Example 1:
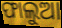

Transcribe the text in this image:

ଫାଲୁଆ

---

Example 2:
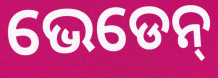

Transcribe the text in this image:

ଭେଡେନ୍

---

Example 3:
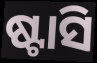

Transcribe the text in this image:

ଷ୍ଟାସି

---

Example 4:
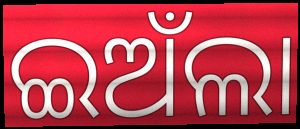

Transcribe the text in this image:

ଇଅଁଲା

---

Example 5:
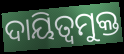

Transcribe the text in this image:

ଦାୟିତ୍ୱମୁକ୍ତ